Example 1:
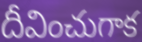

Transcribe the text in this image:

దీవించుగాక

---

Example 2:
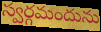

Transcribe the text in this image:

స్వర్గమందును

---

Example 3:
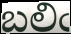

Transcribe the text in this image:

బలిఁ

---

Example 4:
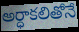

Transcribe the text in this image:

అర్ధాకలితోనే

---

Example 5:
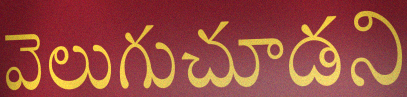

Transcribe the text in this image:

వెలుగుచూడని